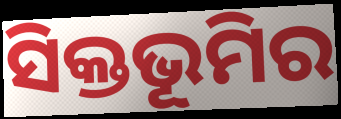
ସିକ୍ତଭୂମିର